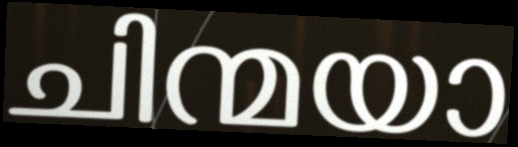
ചിന്മയാ